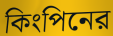
কিংপিনের